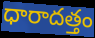
ధారాదత్తం